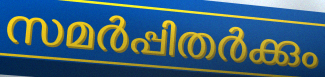
സമർപ്പിതർക്കും